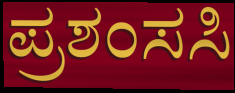
ಪ್ರಶಂಸಸಿ